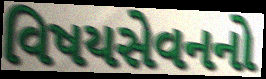
વિષયસેવનનો